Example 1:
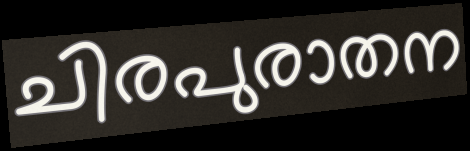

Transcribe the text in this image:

ചിരപുരാതന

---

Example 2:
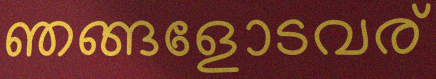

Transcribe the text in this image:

ഞങ്ങളോടവര്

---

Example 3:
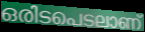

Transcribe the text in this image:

ഒരിടപെടലാണ്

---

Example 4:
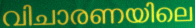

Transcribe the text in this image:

വിചാരണയിലെ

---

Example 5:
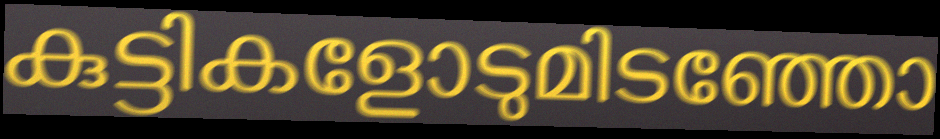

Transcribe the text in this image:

കുട്ടികളോടുമിടഞ്ഞോ